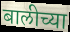
बालीच्या